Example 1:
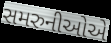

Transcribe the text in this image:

સમરુનીઓએ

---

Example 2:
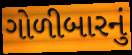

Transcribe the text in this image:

ગોળીબારનું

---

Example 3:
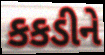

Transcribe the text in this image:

કકડીને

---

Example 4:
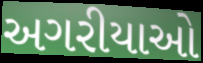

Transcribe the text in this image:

અગરીયાઓ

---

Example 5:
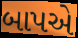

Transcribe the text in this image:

બાપએ